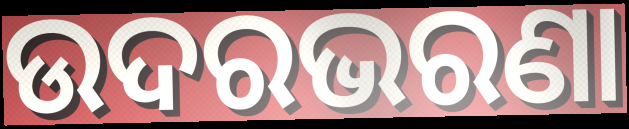
ଉଦରଭରଣା